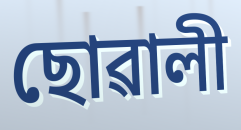
ছোৱালী